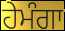
ਹੇਮੰਗਾ